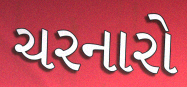
ચરનારો